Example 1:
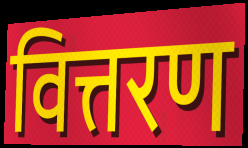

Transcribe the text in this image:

वित्तरण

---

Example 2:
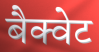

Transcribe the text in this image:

बैक्वेट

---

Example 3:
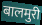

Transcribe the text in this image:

बालमुरी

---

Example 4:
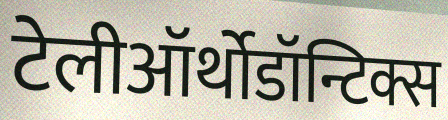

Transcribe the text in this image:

टेलीऑर्थोडॉन्टिक्स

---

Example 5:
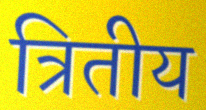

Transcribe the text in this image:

त्रितीय